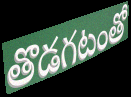
తొడగటంతో